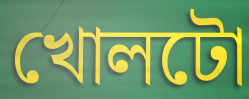
খোলটো